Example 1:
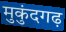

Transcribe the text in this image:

मुकुंदगढ़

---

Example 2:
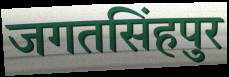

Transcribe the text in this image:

जगतसिंहपुर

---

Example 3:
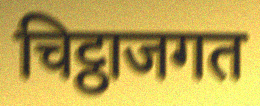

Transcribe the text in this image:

चिट्ठाजगत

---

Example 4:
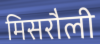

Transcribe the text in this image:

मिसरौली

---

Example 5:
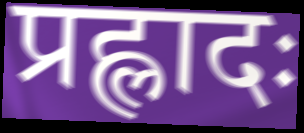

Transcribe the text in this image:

प्रह्लादः